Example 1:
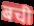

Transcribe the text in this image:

बची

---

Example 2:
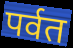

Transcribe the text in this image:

पर्वत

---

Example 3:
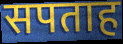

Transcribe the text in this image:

सपताह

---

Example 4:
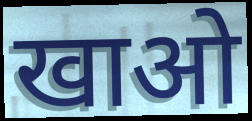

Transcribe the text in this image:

खाओ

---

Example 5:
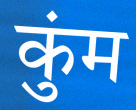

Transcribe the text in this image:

कुंम